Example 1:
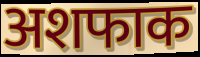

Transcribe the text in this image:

अशफाक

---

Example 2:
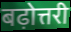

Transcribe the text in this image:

बढ़ोत्तरी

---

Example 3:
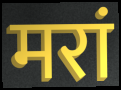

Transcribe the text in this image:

मरां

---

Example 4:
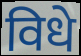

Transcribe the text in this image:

विधे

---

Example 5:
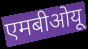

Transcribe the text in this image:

एमबीओयू